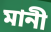
মানী